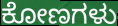
ಕೋಣಗಳು